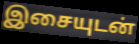
இசையுடன்